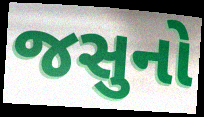
જસુનો